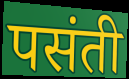
पसंती